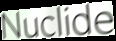
Nuclide